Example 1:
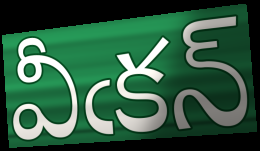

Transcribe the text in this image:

వీఁకన్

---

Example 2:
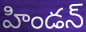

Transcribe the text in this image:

హిండన్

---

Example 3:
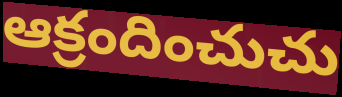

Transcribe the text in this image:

ఆక్రందించుచు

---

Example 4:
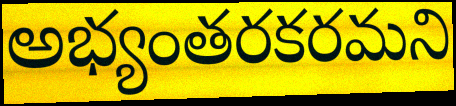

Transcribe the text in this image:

అభ్యంతరకరమని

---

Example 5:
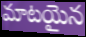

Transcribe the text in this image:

మాటయైన